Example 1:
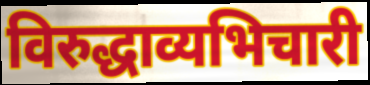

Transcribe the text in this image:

विरुद्धाव्यभिचारी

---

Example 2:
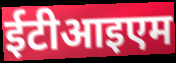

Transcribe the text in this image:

ईटीआइएम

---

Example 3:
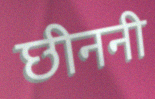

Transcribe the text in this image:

छीननी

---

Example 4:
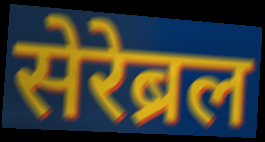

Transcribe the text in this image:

सेरेब्रल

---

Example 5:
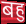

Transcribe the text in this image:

बहु